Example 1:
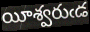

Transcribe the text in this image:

యీశ్వరుఁడ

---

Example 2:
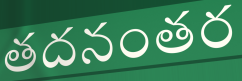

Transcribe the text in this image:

తదనంతర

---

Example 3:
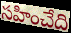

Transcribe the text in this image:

సహించేది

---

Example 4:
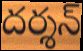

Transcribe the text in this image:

దర్శన్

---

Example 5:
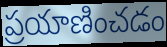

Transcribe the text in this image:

ప్రయాణించడం